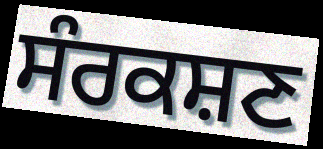
ਸੰਰਕਸ਼ਣ